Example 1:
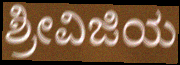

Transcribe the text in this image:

ಶ್ರೀವಿಜಿಯ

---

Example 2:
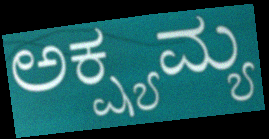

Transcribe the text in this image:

ಅಕ್ಷ್ಯಮ್ಯ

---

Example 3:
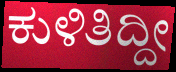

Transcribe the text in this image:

ಕುಳಿತಿದ್ದೀ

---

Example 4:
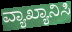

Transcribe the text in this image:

ವ್ಯಾಖ್ಯಾನಿಸಿ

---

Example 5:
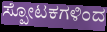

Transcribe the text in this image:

ಸ್ಪೋಟಕಗಳಿಂದ